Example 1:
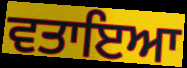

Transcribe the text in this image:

ਵਤਾਇਆ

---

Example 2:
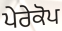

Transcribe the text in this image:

ਪੇਰੇਕੋਪ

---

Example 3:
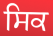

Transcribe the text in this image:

ਸਿਕ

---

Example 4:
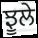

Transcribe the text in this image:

ਝੂਲੇ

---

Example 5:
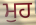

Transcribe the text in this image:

ਮੁਹ